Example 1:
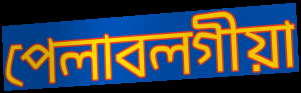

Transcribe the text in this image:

পেলাবলগীয়া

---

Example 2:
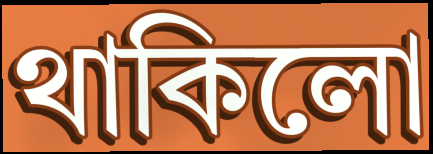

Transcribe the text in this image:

থাকিলো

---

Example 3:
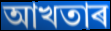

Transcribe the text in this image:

আখতাৰ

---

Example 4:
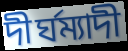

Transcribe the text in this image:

দীৰ্ঘম্যাদী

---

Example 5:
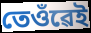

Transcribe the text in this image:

তেওঁৱেই